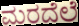
ಮರದೆಲೆ